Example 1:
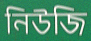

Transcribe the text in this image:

নিউজি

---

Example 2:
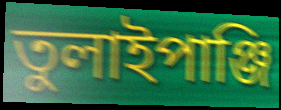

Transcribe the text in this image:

তুলাইপাঞ্জি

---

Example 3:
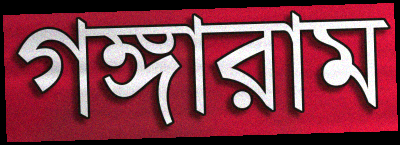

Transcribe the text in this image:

গঙ্গারাম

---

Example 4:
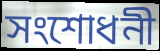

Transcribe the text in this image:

সংশোধনী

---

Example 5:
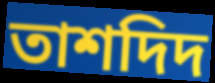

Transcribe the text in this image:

তাশদিদ